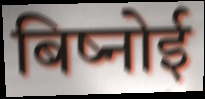
बिष्नोई